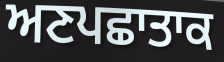
ਅਣਪਛਾਤਾਕ